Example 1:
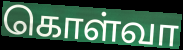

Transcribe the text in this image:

கொள்வா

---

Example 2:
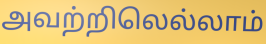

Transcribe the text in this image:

அவற்றிலெல்லாம்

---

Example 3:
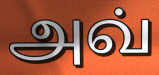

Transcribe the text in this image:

அவ்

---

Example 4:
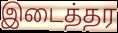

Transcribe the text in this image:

இடைத்தர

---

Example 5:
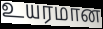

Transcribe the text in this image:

உயரமான